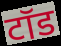
टॉड